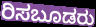
ರಿಸಬೂಡರು